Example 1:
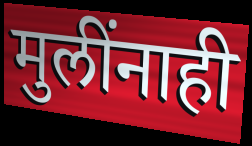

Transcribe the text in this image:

मुलींनाही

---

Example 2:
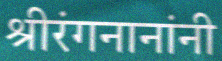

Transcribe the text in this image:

श्रीरंगनानांनी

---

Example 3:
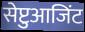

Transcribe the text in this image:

सेप्टुआजिंट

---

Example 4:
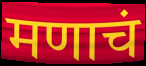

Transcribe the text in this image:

मणाचं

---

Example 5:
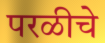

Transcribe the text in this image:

परळीचे